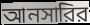
আনসারির